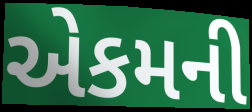
એકમની